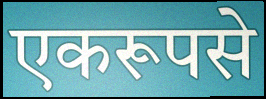
एकरूपसे